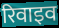
रिवाइव